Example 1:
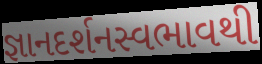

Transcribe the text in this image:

જ્ઞાનદર્શનસ્વભાવથી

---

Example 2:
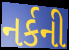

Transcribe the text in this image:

નર્કની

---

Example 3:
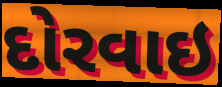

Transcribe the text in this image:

દોરવાઇ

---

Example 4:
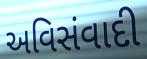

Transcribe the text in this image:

અવિસંવાદી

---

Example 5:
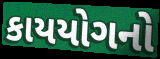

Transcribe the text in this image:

કાયયોગનો